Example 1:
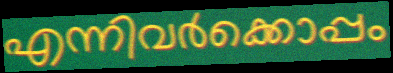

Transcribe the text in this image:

എന്നിവർക്കൊപ്പം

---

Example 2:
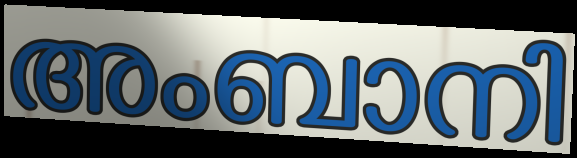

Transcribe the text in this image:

അംബാനി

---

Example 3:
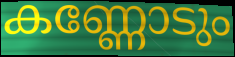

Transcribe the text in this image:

കണ്ണോടും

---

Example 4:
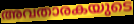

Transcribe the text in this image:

അവതാരകയുടെ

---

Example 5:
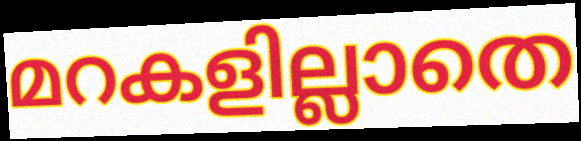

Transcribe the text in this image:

മറകളില്ലാതെ